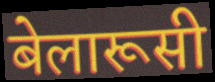
बेलारूसी